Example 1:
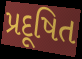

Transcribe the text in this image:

પ્રદૂષિત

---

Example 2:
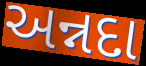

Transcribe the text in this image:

અન્નદા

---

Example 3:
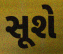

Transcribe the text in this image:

સૂશે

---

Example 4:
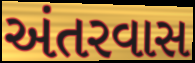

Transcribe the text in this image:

અંતરવાસ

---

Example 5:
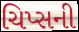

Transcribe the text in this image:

ચિપ્સની